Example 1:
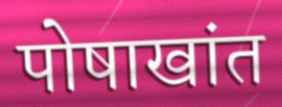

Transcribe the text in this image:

पोषाखांत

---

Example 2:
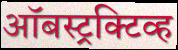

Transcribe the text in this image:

ऑबस्ट्रक्टिव्ह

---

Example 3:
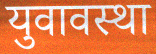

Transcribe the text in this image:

युवावस्था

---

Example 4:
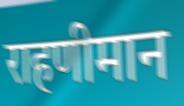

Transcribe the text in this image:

राहणीमान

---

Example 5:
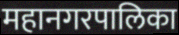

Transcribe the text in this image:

महानगरपालिका